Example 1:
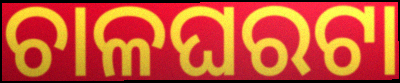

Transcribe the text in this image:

ଚାଳଘରଟା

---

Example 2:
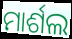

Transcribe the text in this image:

ମାର୍ଶଲ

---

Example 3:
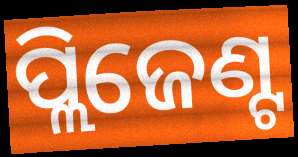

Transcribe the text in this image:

ପ୍ଲିଜେଣ୍ଟ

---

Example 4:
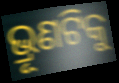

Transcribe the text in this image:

ଭ୍ରୂଣଟିକୁ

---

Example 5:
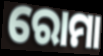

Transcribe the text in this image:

ରୋମା